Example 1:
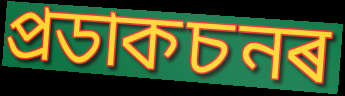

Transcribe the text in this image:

প্ৰডাকচনৰ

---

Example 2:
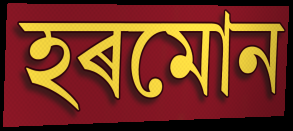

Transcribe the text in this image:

হৰমোন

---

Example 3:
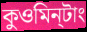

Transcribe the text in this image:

কুওমিন্‌টাং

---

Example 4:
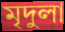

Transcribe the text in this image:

মৃদুলা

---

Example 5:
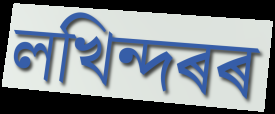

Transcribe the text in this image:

লখিন্দৰৰ